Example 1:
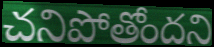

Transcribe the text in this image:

చనిపోతోందని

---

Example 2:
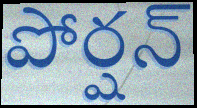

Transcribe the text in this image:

పోర్షన్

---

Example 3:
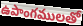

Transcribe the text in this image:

ఉపాంగములతో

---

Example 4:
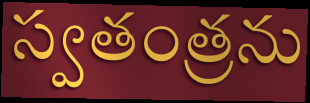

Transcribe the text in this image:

స్వతంత్రను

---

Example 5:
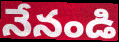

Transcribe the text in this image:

నేనండి